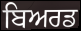
ਬਿਅਰਡ